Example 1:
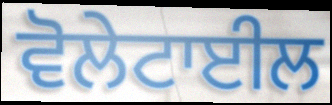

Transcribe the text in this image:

ਵੋਲੇਟਾਈਲ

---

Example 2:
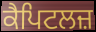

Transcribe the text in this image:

ਕੈਪਿਟਲਜ਼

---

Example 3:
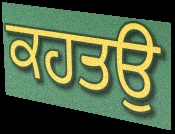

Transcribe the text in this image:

ਕਹਤਉ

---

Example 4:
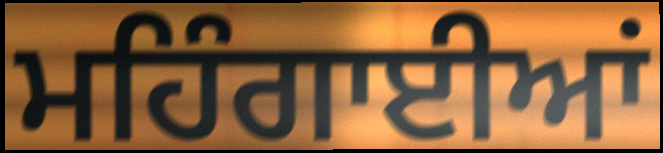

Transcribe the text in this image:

ਮਹਿੰਗਾਈਆਂ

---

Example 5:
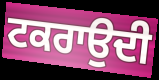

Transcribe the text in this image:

ਟਕਰਾਉਦੀ